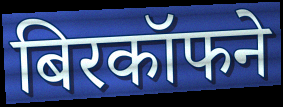
बिरकॉफने